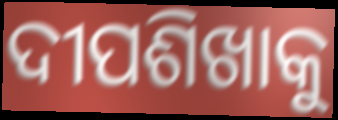
ଦୀପଶିଖାକୁ